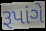
રૂપાંગે